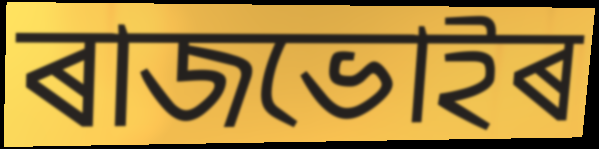
ৰাজভোইৰ